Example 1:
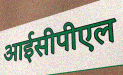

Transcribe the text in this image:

आईसीपीएल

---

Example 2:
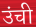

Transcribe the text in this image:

उंची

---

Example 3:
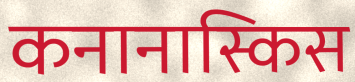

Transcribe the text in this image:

कनानास्किस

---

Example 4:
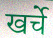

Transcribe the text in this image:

खर्चे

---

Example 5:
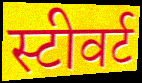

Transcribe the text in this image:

स्टीवर्ट